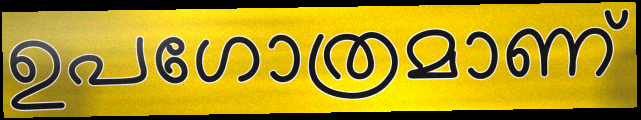
ഉപഗോത്രമാണ്